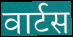
वार्टस